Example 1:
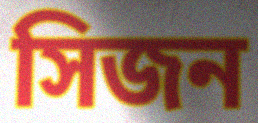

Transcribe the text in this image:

সিজন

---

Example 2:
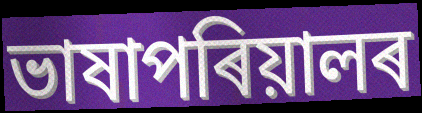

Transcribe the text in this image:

ভাষাপৰিয়ালৰ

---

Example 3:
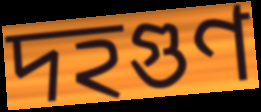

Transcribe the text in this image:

দহগুণ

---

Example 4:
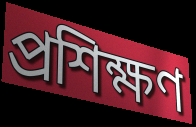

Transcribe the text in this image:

প্ৰশিক্ষণ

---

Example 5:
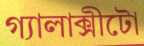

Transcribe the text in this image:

গ্যালাক্সীটো